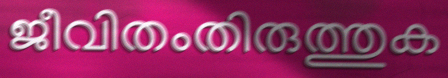
ജീവിതംതിരുത്തുക